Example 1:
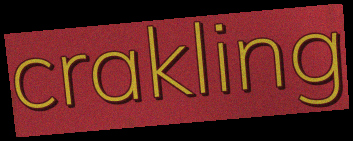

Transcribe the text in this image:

crakling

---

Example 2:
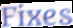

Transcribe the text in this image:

Fixes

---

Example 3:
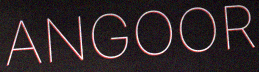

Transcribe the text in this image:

ANGOOR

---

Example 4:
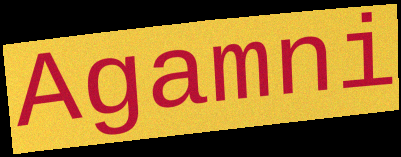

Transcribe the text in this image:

Agamni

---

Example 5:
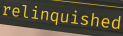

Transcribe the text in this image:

relinquished